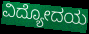
ವಿದ್ಯೋದಯ